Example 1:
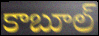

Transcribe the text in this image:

కాబూల్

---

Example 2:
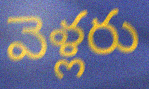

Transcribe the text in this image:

వెళ్లరు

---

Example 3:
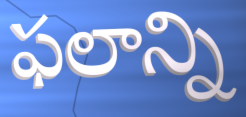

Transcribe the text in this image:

ఫలాన్ని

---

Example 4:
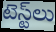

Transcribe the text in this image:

టెస్ట్‌లు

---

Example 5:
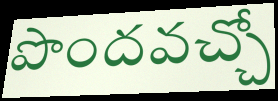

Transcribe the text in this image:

పొందవచ్చో